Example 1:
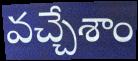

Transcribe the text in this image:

వచ్చేశాం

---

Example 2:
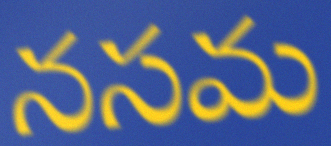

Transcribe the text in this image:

నసమ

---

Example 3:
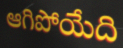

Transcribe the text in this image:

ఆగిపోయేది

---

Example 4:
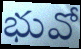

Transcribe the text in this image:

భువో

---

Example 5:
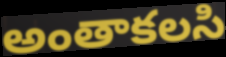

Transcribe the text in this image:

అంతాకలసి